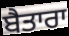
ਬੈਤਾਰਾ